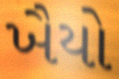
ખૈયો